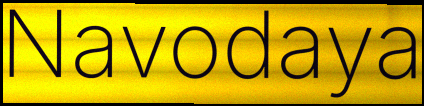
Navodaya